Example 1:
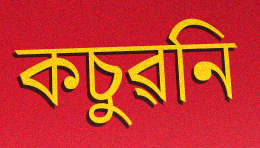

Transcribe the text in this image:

কচুৱনি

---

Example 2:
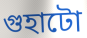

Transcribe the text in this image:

গুহাটো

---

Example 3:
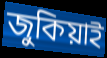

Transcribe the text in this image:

জুকিয়াই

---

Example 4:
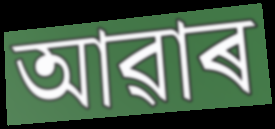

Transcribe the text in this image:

আৱাৰ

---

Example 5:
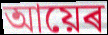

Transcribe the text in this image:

আয়েৰ